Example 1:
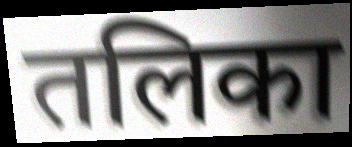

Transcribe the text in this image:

तलिका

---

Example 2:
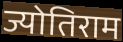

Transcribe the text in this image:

ज्योतिराम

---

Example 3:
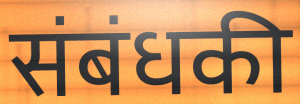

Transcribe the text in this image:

संबंधकी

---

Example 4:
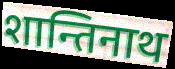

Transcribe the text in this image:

शान्तिनाथ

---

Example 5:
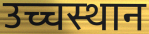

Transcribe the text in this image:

उच्चस्थान